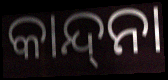
କାନ୍ଦ୍‌ନା